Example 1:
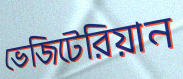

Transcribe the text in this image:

ভেজিটেরিয়ান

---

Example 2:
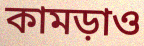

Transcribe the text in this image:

কামড়াও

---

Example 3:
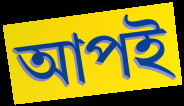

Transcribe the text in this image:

আপই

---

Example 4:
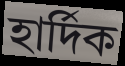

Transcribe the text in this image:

হার্দিক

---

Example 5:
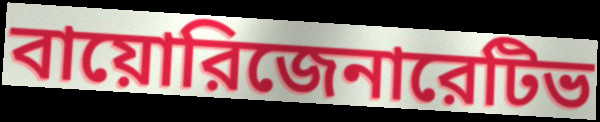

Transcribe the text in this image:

বায়োরিজেনারেটিভ